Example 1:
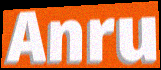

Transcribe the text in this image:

Anru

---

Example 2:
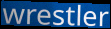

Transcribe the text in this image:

wrestler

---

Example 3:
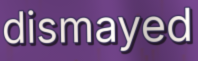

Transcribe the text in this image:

dismayed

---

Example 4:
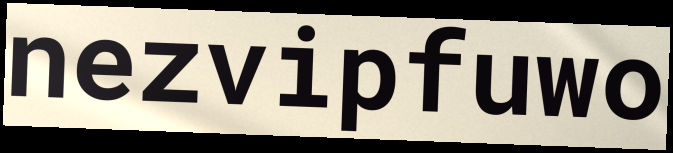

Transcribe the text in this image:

nezvipfuwo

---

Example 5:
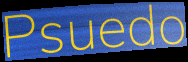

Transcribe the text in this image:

Psuedo